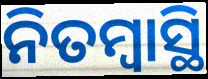
ନିତମ୍ବାସ୍ଥି